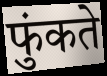
फुंकते